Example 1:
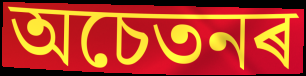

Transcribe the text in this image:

অচেতনৰ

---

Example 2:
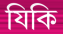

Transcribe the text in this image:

যিকি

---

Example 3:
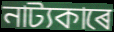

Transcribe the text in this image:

নাট্যকাৰে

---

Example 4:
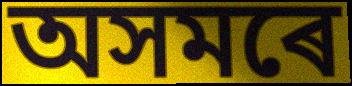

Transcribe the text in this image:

অসমৰে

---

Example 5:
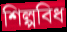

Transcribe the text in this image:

শিল্পবিধ